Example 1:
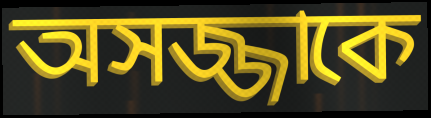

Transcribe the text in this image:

অসজ্জাকে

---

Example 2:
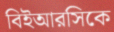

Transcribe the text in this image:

বিইআরসিকে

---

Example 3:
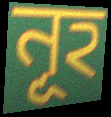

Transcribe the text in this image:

নূহ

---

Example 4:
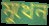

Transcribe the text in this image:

মুখেন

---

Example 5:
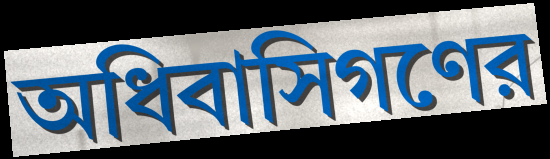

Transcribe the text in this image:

অধিবাসিগণের